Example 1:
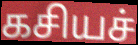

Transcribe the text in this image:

கசியச்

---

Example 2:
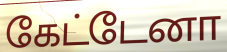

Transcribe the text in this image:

கேட்டேனா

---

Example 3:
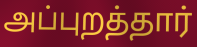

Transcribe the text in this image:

அப்புறத்தார்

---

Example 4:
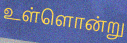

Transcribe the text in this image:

உள்ளொன்று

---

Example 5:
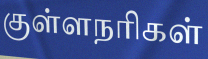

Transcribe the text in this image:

குள்ளநரிகள்